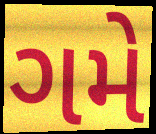
ગમે